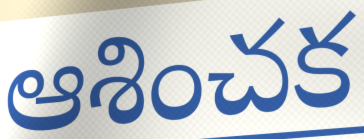
ఆశించక